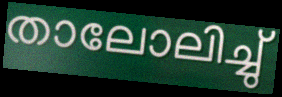
താലോലിച്ചു്